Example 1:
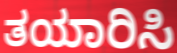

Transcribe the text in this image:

ತಯಾರಿಸಿ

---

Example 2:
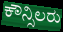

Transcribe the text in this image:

ಕೌನ್ಸಿಲರು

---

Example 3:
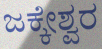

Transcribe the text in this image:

ಜಕ್ಕೇಶ್ವರ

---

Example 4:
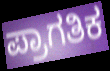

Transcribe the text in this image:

ಪ್ರಾಗತಿಕ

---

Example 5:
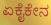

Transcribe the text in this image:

ಏಕೈಕೇನ